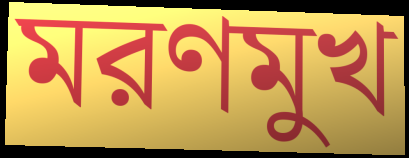
মরণমুখ